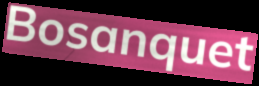
Bosanquet